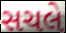
સચલે